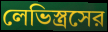
লেভিস্ত্রসের